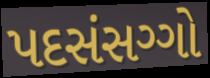
પદસંસગ્ગો